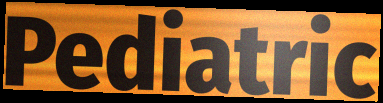
Pediatric